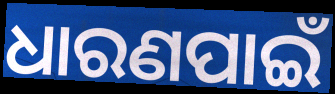
ଧାରଣପାଇଁ